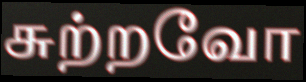
சுற்றவோ